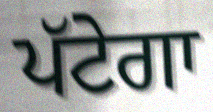
ਪੱਟੇਗਾ